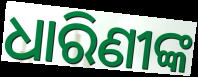
ଧାରିଣୀଙ୍କ